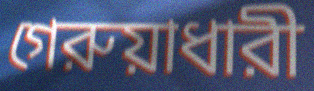
গেরুয়াধারী